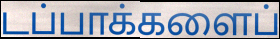
டப்பாக்களைப்